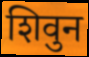
शिवुन